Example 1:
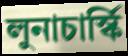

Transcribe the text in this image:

লুনাচার্স্কি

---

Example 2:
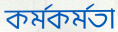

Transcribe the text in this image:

কর্মকর্মতা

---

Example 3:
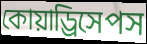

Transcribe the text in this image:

কোয়াড্রিসেপস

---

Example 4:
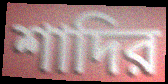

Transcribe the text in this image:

শাদির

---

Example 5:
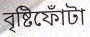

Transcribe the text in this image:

বৃষ্টিফোঁটা